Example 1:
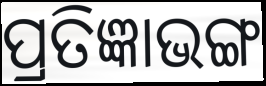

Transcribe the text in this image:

ପ୍ରତିଜ୍ଞାଭଙ୍ଗ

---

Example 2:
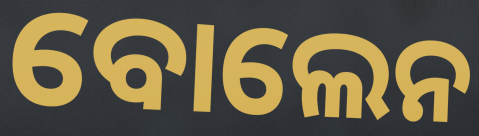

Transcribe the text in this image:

ବୋଲେନ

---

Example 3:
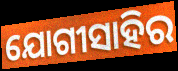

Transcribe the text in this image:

ଯୋଗୀସାହିର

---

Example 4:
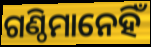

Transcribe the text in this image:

ଗଣ୍ଠିମାନେହିଁ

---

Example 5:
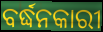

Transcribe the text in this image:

ବର୍ଦ୍ଧନକାରୀ